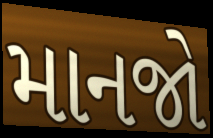
માનજો